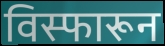
विस्फारून